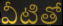
వీటితో